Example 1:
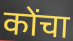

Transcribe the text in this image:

कोंचा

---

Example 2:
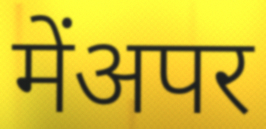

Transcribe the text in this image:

मेंअपर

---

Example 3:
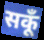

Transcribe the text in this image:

सकूँ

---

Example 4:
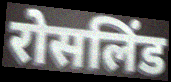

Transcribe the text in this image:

रोसलिंड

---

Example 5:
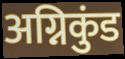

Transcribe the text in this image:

अग्निकुंड